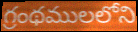
గ్రంథములలోని